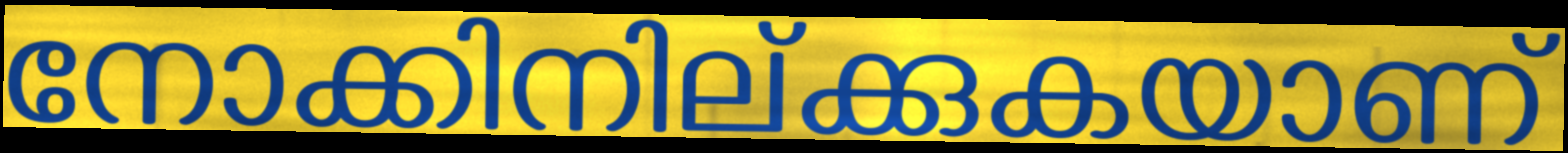
നോക്കിനില്ക്കുകയാണ്